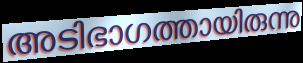
അടിഭാഗത്തായിരുന്നു